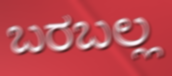
ಬರಬಲ್ಲ